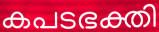
കപടഭക്തി